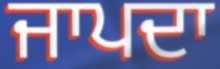
ਜਾਪਦਾ